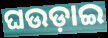
ଘଉଡ଼ାଇ